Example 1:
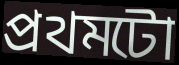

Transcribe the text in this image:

প্ৰথমটো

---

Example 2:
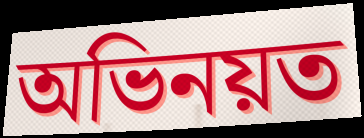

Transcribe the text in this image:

অভিনয়ত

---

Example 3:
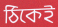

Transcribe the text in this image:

ঠিকেই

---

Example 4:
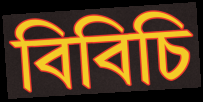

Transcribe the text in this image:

বিবিচি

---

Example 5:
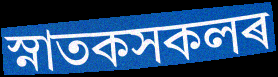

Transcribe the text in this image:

স্নাতকসকলৰ